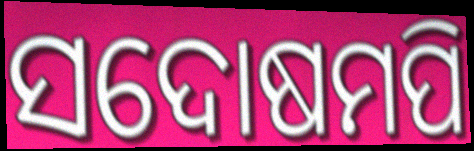
ସଦୋଷମପି